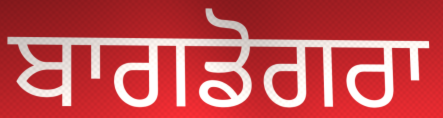
ਬਾਗਡੋਗਰਾ